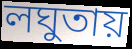
লঘুতায়